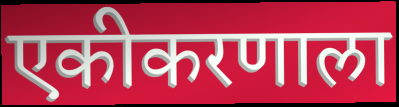
एकीकरणाला